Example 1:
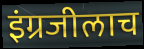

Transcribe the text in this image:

इंग्रजीलाच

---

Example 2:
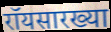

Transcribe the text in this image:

रॉयसारख्या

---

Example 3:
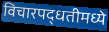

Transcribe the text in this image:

विचारपद्धतीमध्ये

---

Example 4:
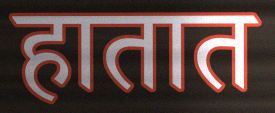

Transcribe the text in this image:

हातात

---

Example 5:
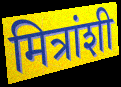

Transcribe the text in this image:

मित्रांशी